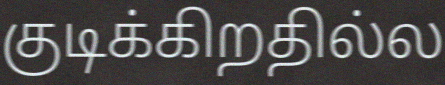
குடிக்கிறதில்ல